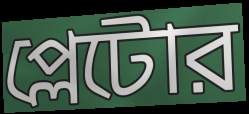
প্লেটোর